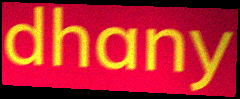
dhany